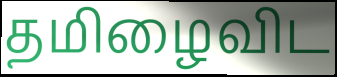
தமிழைவிட